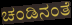
ಚಂಡಿನಂತೆ